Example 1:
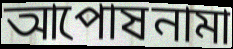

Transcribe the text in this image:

আপোষনামা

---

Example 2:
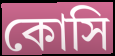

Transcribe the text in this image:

কোসি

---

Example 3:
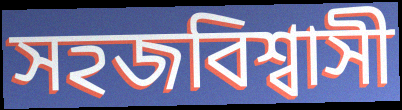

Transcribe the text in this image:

সহজবিশ্বাসী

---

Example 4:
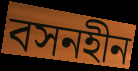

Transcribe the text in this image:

বসনহীন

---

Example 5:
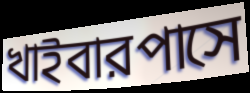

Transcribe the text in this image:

খাইবারপাসে